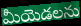
మీయెడలను